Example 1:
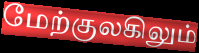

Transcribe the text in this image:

மேற்குலகிலும்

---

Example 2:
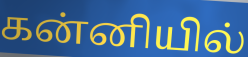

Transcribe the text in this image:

கன்னியில்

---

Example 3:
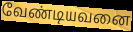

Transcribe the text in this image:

வேண்டியவனை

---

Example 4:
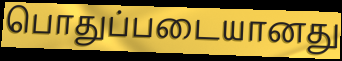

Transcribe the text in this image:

பொதுப்படையானது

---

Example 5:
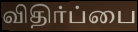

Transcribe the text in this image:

விதிர்ப்பை